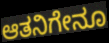
ಆತನಿಗೇನೂ